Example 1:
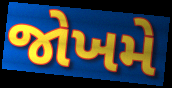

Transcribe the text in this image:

જોખમે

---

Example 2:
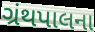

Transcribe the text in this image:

ગ્રંથપાલના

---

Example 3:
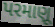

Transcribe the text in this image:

પરમાણૂ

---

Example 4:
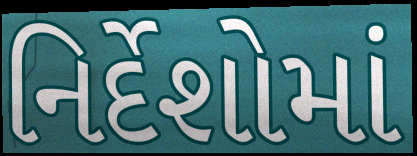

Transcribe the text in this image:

નિર્દેશોમાં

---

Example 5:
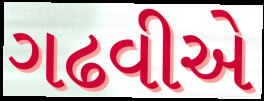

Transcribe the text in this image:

ગઢવીએ